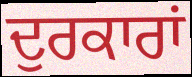
ਦੁਰਕਾਰਾਂ